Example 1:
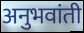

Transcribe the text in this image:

अनुभवांती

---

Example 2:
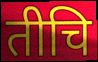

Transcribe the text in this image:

तीचि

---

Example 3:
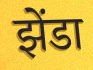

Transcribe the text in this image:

झेंडा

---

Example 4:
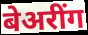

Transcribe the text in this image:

बेअरींग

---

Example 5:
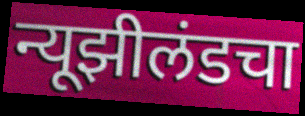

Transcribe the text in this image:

न्यूझीलंडचा